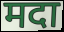
मदा